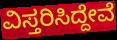
ವಿಸ್ತರಿಸಿದ್ದೇವೆ